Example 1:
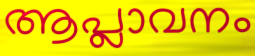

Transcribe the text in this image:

ആപ്ലാവനം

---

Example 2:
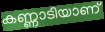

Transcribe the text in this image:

കണ്ണാടിയാണ്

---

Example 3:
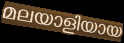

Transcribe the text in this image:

മലയാളിയായ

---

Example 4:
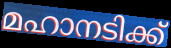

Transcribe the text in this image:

മഹാനടിക്ക്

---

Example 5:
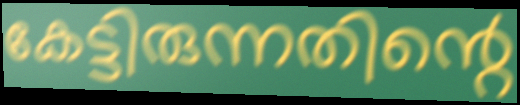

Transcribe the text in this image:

കേട്ടിരുന്നതിന്റെ